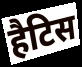
हैटिस